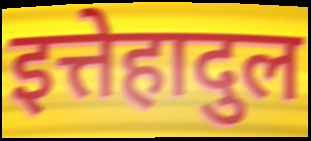
इत्तेहादुल